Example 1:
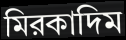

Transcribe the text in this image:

মিরকাদিম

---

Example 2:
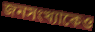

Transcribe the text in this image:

জনসংখ্যাকেও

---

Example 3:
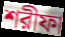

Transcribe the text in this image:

শরীফা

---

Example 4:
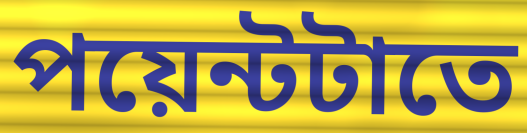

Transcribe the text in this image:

পয়েন্টটাতে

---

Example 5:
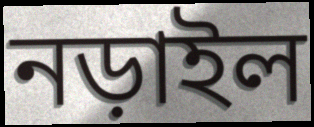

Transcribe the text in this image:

নড়াইল